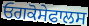
ਓਗਕੋਸੇਫਾਲਸ